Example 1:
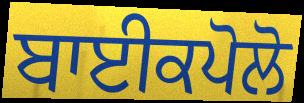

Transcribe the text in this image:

ਬਾਈਕਪੋਲੋ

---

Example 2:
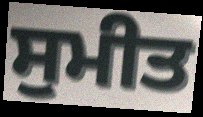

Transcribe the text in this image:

ਸੁਮੀਤ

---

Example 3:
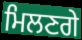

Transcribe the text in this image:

ਮਿਲਣਗੇ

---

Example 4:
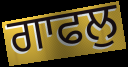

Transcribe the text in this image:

ਗਾਫਲੁ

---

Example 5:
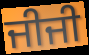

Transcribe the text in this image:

ਜੀਜੀ